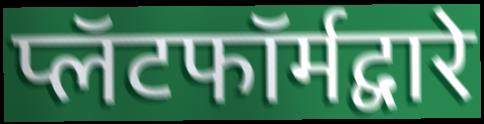
प्लॅटफॉर्मद्वारे